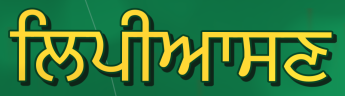
ਲਿਪੀਆਸਣ